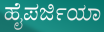
ಹೈಪರ್ಜಿಯಾ